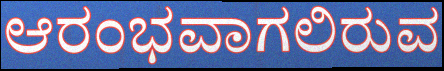
ಆರಂಭವಾಗಲಿರುವ